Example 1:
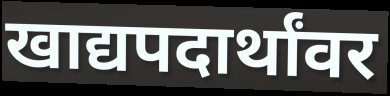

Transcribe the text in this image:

खाद्यपदार्थांवर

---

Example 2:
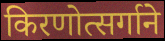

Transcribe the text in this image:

किरणोत्सर्गाने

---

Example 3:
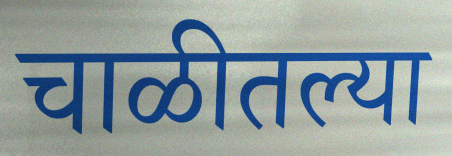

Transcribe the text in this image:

चाळीतल्या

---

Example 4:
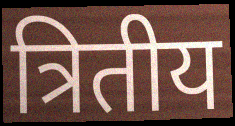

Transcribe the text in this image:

त्रितीय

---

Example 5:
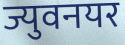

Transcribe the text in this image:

ज्युवनयर